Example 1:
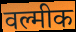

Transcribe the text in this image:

वल्मीक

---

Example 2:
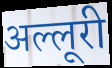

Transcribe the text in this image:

अल्लूरी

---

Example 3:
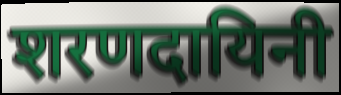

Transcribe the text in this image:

शरणदायिनी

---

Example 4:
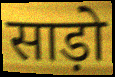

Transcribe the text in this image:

साड़ो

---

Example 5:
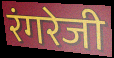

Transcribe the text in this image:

रंगरेजी